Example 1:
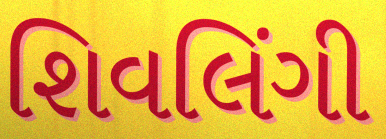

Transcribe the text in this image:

શિવલિંગી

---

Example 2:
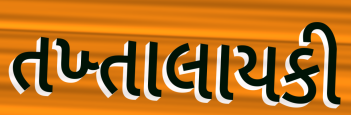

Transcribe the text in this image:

તખ્તાલાયકી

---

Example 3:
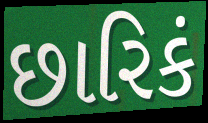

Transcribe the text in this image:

છારિકં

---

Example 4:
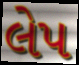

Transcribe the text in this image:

લેપ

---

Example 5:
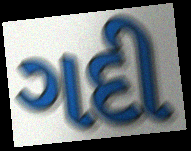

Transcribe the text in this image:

ગદી